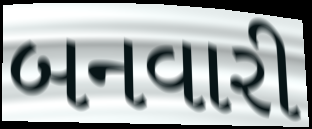
બનવારી